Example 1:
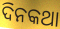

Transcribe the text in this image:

ଦିନକଥା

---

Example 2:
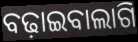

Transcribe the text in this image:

ବଢ଼ାଇବାଲାଗି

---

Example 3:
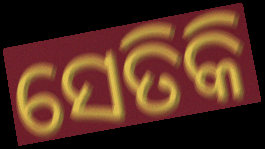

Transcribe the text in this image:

ସେତିକି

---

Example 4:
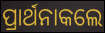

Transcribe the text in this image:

ପ୍ରାର୍ଥନାକଲେ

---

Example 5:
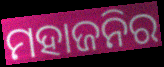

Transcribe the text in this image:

ମହାଜନିର